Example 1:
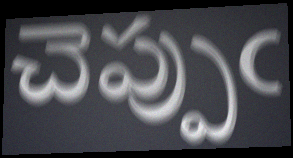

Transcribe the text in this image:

చెప్పుఁ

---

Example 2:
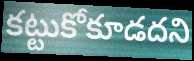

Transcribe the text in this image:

కట్టుకోకూడదని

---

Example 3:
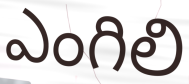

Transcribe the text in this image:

ఎంగిలి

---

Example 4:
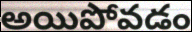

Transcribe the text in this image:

అయిపోవడం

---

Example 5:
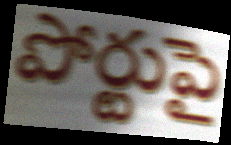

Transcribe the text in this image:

పోర్టుపై